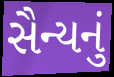
સૈન્યનું